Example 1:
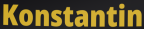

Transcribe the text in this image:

Konstantin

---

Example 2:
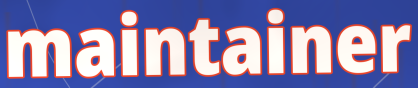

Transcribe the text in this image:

maintainer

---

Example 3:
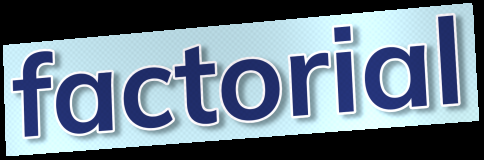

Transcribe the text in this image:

factorial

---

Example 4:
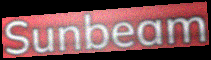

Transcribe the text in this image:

Sunbeam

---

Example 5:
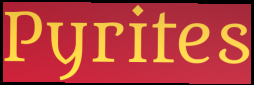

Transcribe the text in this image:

Pyrites